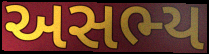
અસભ્ય